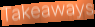
Takeaways